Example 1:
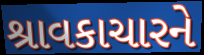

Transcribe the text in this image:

શ્રાવકાચારને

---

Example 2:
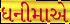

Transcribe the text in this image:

ધનીમાએ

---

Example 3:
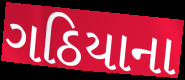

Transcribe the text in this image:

ગઠિયાના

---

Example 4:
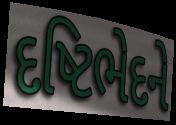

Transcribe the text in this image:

દષ્ટિભેદને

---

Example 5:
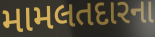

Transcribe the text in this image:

મામલતદારના